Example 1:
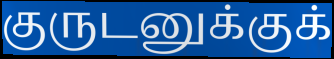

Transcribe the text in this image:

குருடனுக்குக்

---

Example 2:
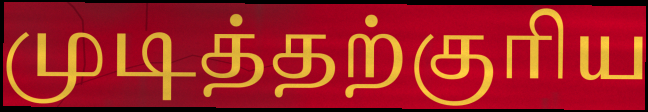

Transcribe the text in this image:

முடித்தற்குரிய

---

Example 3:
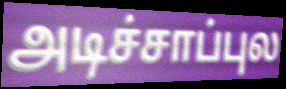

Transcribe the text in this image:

அடிச்சாப்புல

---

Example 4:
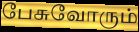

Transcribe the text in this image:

பேசுவோரும்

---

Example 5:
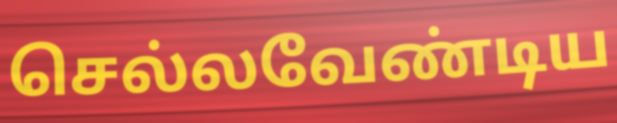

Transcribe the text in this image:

செல்லவேண்டிய